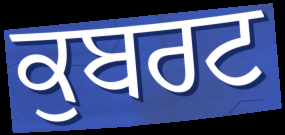
ਕੁਬਰਟ